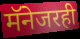
मॅनेजरही